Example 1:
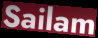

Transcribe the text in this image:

Sailam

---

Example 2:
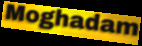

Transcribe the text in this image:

Moghadam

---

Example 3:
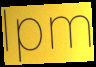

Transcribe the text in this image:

lpm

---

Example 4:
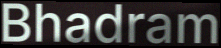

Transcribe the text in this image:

Bhadram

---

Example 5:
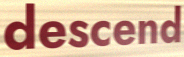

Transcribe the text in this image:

descend